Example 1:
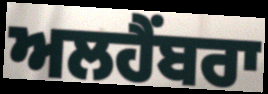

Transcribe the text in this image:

ਅਲਹੈਂਬਰਾ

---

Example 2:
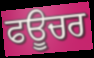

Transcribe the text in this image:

ਫਊਚਰ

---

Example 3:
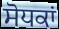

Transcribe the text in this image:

ਸੋਧਕਾਂ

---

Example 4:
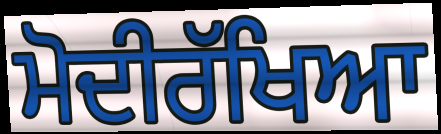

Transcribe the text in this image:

ਮੋਦੀਰੱਖਿਆ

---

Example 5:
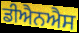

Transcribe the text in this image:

ਡੀਐਨਐਸ